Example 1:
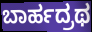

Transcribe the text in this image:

ಬಾರ್ಹದ್ರಥ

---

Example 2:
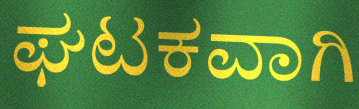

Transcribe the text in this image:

ಘಟಕವಾಗಿ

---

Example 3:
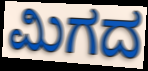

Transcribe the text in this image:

ಮಿಗದ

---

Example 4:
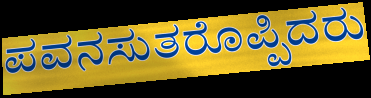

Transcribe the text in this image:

ಪವನಸುತರೊಪ್ಪಿದರು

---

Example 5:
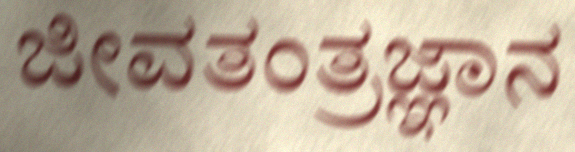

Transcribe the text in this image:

ಜೀವತಂತ್ರಜ್ಞಾನ